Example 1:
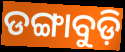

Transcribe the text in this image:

ଡଙ୍ଗାବୁଡ଼ି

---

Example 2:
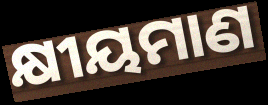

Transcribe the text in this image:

କ୍ଷୀୟମାଣ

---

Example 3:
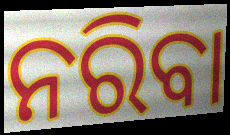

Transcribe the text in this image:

ନରିବା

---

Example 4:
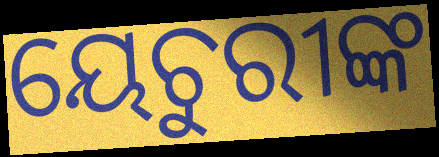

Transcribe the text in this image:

ୟେଚୁରୀଙ୍କ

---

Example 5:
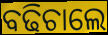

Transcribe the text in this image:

ବଢିଚାଲେ